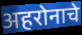
अहरोनाचे